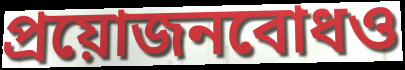
প্রয়োজনবোধও